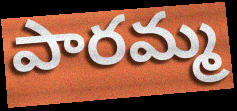
పారమ్మ